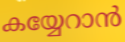
കയ്യേറാൻ